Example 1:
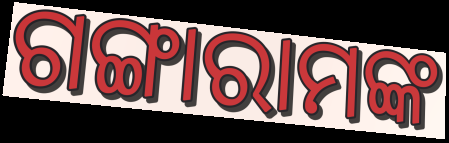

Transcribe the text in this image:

ଗଙ୍ଗାରାମଙ୍କ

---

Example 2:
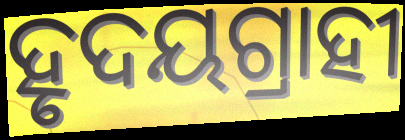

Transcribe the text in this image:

ହୃଦୟଗ୍ରାହୀ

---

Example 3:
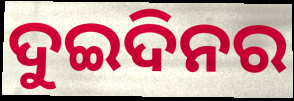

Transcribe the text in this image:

ଦୁଇଦିନର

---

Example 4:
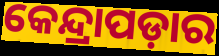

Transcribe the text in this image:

କେନ୍ଦ୍ରାପଡ଼ାର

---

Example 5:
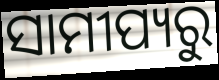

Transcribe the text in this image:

ସାମୀପ୍ୟରୁ